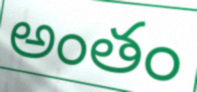
అంతం